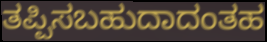
ತಪ್ಪಿಸಬಹುದಾದಂತಹ